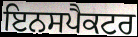
ਇਨਸਪੈਕਟਰ